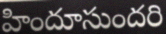
హిందూసుందరి